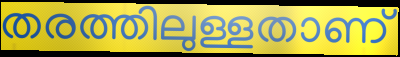
തരത്തിലുള്ളതാണ്